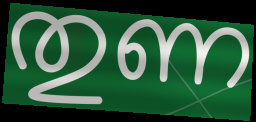
തുണ